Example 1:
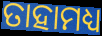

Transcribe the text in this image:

ତାହାମଧ୍ୟ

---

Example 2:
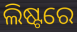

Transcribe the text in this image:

ଲିଷ୍ଟରେ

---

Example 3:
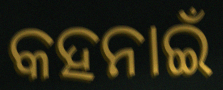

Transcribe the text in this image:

କହନାଇଁ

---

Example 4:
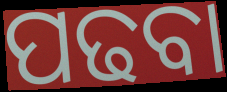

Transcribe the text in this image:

ପଢବା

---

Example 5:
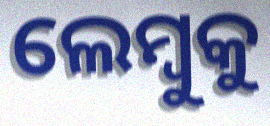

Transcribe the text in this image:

ଲେମ୍ବୁକୁ